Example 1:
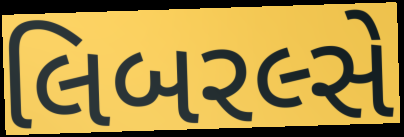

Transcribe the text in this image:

લિબરલ્સે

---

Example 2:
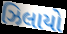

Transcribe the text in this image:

ઝિલાયો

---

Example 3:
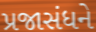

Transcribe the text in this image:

પ્રજાસંધને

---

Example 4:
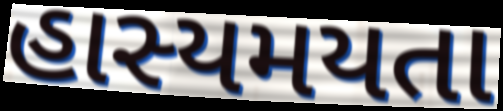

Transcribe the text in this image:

હાસ્યમયતા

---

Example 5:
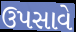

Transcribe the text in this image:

ઉપસાવે